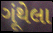
ગૂંથેલા